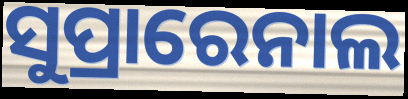
ସୁପ୍ରାରେନାଲ